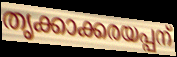
തൃക്കാക്കരയപ്പന്